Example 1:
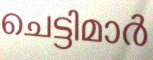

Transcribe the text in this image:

ചെട്ടിമാർ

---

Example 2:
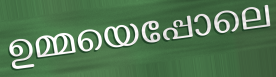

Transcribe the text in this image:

ഉമ്മയെപ്പോലെ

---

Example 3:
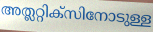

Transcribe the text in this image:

അത്ലറ്റിക്സിനോടുള്ള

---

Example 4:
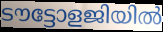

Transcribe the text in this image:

ടൗട്ടോളജിയിൽ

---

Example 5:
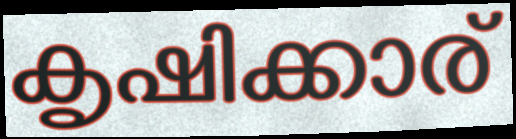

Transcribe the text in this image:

കൃഷിക്കാര്